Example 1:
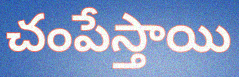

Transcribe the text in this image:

చంపేస్తాయి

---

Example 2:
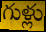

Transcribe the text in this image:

గుళ్లు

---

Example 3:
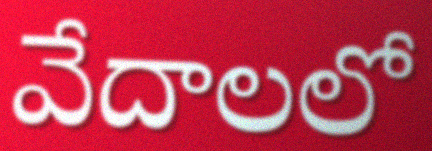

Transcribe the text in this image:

వేదాలలో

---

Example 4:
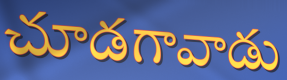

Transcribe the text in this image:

చూడగావాడు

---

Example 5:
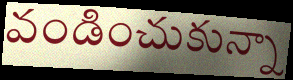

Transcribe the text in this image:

వండించుకున్నా